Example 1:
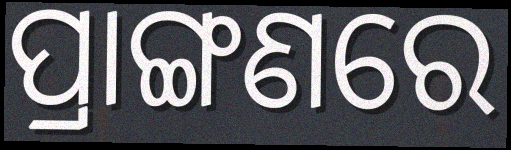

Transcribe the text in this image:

ପ୍ରାଙ୍ଗଣରେ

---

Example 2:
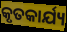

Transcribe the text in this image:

କୃତକାର୍ଯ୍ୟ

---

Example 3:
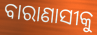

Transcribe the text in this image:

ବାରାଣାସୀକୁ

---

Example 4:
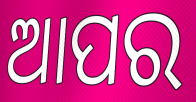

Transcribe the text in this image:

ଆପର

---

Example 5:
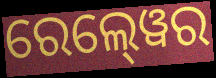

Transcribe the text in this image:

ରେଲ୍‍ୱେର